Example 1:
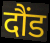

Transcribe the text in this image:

दौंड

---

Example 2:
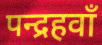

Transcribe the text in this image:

पन्द्रहवाँ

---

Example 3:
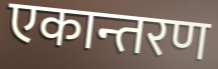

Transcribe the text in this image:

एकान्तरण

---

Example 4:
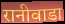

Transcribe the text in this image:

रानीवाडा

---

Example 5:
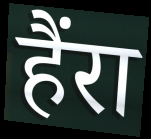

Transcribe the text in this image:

हैंरा